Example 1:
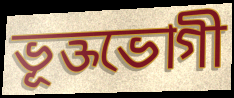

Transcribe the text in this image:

ভূক্তভোগী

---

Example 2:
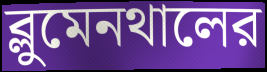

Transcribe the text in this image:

ব্লুমেনথালের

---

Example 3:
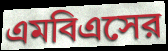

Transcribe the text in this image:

এমবিএসের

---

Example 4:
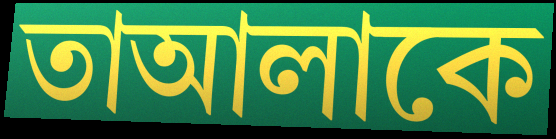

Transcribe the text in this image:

তাআলাকে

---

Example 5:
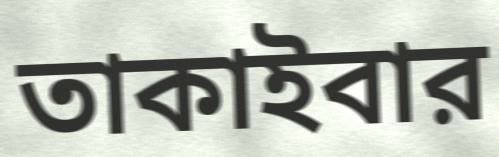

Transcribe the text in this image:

তাকাইবার